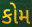
કોમ